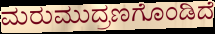
ಮರುಮುದ್ರಣಗೊಂಡಿದೆ